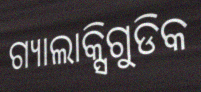
ଗ୍ୟାଲାକ୍ସିଗୁଡିକ